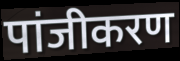
पांजीकरण